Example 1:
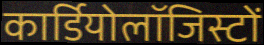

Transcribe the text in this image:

कार्डियोलॉजिस्टों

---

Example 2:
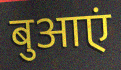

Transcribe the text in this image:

बुआएं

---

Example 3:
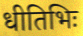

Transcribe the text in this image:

धीतिभिः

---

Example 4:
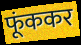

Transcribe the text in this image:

फूंककर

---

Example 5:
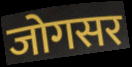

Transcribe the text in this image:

जोगसर